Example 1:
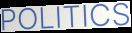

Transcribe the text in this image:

POLITICS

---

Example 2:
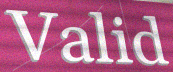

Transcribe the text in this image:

Valid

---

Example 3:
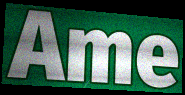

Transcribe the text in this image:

Ame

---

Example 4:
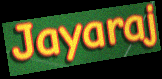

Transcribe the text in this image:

Jayaraj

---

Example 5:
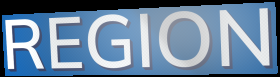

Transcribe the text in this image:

REGION